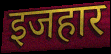
इजहार